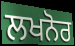
ਲਖਨੋਰ